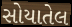
સોયાતેલ